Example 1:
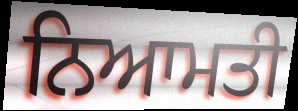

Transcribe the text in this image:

ਨਿਆਮਤੀ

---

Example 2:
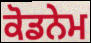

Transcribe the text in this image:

ਕੋਡਨੇਮ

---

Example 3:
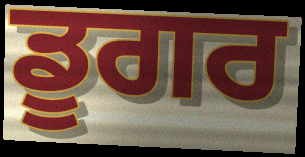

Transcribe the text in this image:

ਡੂਗਰ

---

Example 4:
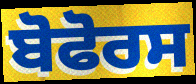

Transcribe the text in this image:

ਬੋਫੋਰਸ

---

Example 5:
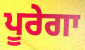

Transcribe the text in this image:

ਪੂਰੇਗਾ